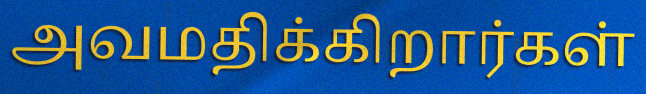
அவமதிக்கிறார்கள்